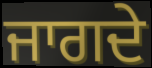
ਜਾਗਦੇ